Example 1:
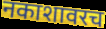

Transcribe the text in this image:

नकाशावरच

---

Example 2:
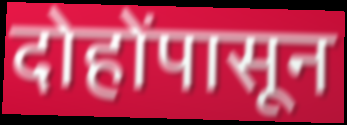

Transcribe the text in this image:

दोहोंपासून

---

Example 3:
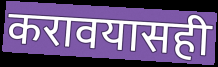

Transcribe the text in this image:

करावयासही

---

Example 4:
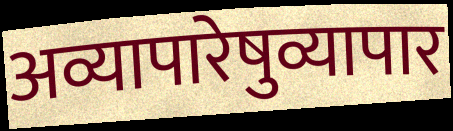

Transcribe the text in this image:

अव्यापारेषुव्यापार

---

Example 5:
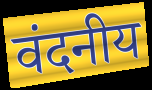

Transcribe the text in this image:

वंदनीय